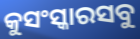
କୁସଂସ୍କାରସବୁ